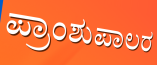
ಪ್ರಾಂಶುಪಾಲರ